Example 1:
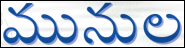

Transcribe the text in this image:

మునుల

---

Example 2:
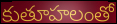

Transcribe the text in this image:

కుతూహలంతో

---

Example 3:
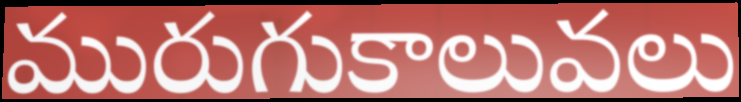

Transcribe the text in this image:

మురుగుకాలువలు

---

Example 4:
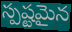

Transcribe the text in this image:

స్పష్టమైన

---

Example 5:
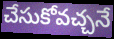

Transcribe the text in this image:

చేసుకోవచ్చనే